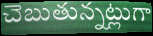
చెబుతున్నట్లుగా